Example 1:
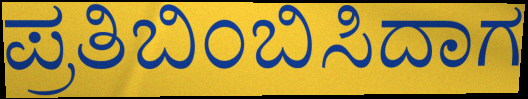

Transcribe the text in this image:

ಪ್ರತಿಬಿಂಬಿಸಿದಾಗ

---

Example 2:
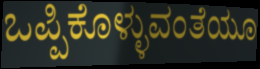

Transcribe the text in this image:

ಒಪ್ಪಿಕೊಳ್ಳುವಂತೆಯೂ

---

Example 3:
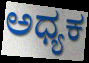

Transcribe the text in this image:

ಅಧ್ಯಕ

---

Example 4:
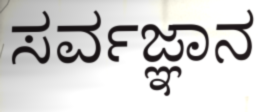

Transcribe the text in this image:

ಸರ್ವಜ್ಞಾನ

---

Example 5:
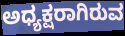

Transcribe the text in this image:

ಅಧ್ಯಕ್ಷರಾಗಿರುವ